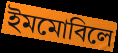
ইমমোবিলে